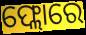
ଫ୍ଲୋରେ